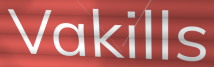
Vakills